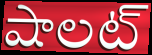
షాలట్